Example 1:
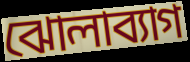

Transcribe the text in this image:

ঝোলাব্যাগ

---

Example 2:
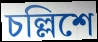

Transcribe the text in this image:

চল্লিশে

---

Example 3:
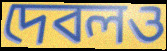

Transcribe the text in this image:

দেবলও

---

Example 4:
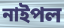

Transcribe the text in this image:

নাইপল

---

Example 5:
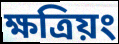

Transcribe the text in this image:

ক্ষত্রিয়ং